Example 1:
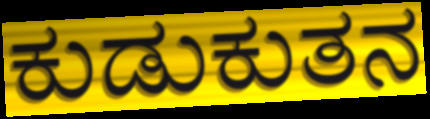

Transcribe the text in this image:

ಕುಡುಕುತನ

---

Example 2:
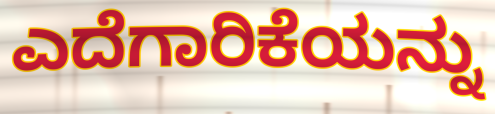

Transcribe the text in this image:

ಎದೆಗಾರಿಕೆಯನ್ನು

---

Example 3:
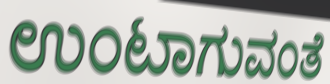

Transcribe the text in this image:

ಉಂಟಾಗುವಂತೆ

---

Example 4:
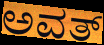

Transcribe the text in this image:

ಅವತ್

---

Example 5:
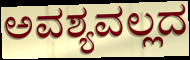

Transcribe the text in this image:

ಅವಶ್ಯವಲ್ಲದ